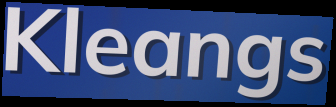
Kleangs